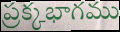
ప్రక్కభాగము